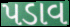
પડાવ